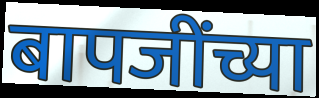
बापजींच्या